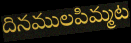
దినములపిమ్మట